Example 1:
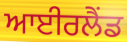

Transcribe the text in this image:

ਆਈਰਲੈਂਡ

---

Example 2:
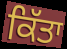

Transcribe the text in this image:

ਕਿੱਤਾ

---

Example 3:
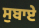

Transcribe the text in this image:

ਸੁਬਾਏ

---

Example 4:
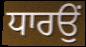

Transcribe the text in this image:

ਧਾਰਉਂ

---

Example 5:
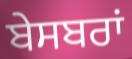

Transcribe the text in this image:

ਬੇਸਬਰਾਂ